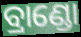
ବ୍ରାଣ୍ଡୋ